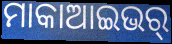
ମାକାଆଇଭର୍